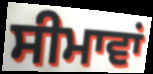
ਸੀਮਾਵਾਂ